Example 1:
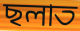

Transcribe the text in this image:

ছলাত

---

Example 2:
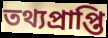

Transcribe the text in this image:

তথ্যপ্রাপ্তি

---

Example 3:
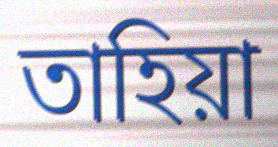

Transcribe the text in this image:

তাহিয়া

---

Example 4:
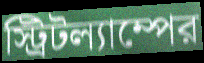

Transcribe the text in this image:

স্ট্রিটল্যাম্পের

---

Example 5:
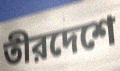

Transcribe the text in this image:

তীরদেশে